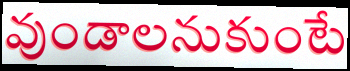
వుండాలనుకుంటే